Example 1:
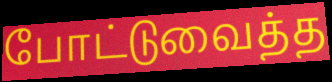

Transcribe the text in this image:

போட்டுவைத்த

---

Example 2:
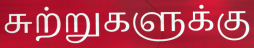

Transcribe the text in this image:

சுற்றுகளுக்கு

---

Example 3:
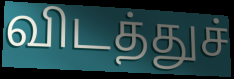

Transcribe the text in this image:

விடத்துச்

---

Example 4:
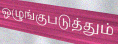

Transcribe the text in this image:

ஒழுங்குபடுத்தும்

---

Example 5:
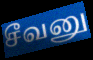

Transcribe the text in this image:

சீவனு